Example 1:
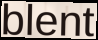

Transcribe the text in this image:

blent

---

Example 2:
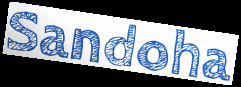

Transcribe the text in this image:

Sandoha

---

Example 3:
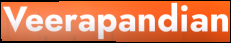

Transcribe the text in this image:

Veerapandian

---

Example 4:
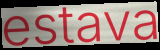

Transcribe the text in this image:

estava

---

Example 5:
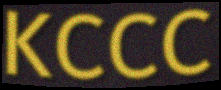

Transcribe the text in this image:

KCCC